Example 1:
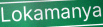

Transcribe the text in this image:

Lokamanya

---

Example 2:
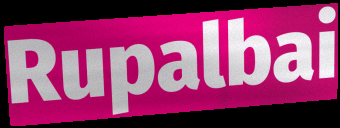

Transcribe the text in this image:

Rupalbai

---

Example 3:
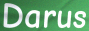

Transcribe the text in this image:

Darus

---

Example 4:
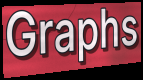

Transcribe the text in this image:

Graphs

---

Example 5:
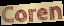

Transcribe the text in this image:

Coren